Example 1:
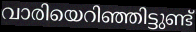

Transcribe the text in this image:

വാരിയെറിഞ്ഞിട്ടുണ്ട്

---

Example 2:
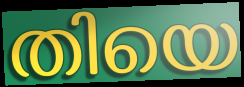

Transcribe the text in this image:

തിയെ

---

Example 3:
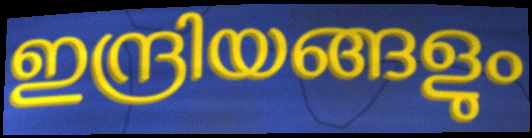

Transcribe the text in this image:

ഇന്ദ്രിയങ്ങളും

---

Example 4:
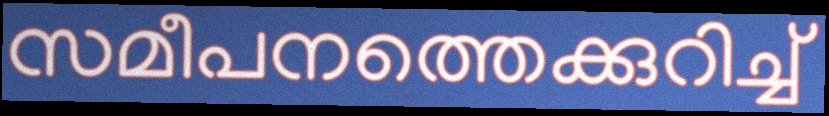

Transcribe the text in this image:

സമീപനത്തെക്കുറിച്ച്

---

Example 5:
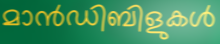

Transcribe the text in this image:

മാൻഡിബിളുകൾ